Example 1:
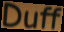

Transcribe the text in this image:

Duff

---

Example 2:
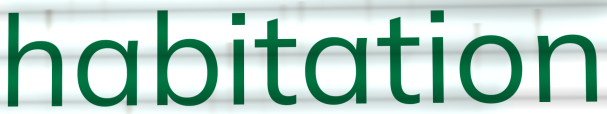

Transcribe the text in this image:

habitation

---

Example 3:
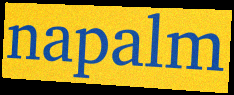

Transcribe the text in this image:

napalm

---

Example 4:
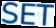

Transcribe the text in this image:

SET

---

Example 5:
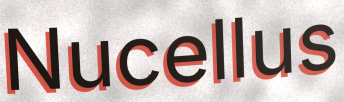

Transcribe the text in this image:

Nucellus